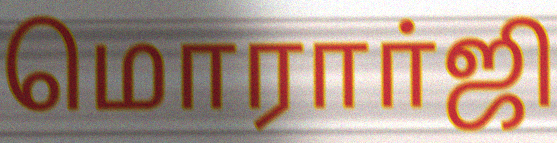
மொரார்ஜி